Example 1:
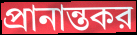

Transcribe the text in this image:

প্রানান্তকর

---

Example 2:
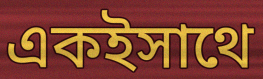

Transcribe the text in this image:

একইসাথে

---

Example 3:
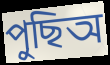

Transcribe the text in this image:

পুছিঅ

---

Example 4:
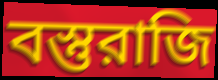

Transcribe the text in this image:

বস্তুরাজি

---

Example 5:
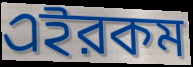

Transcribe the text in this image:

এইরকম